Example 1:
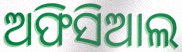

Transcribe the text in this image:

ଅଫିସିଆଲ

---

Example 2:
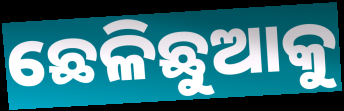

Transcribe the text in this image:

ଛେଳିଛୁଆକୁ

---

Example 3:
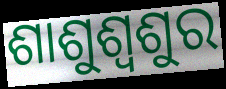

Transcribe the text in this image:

ଶାଶୁଶ୍ୱଶୁର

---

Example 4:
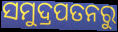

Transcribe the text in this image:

ସମୁଦ୍ରପତନରୁ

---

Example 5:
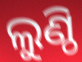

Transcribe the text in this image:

ଲୁଣ୍ଠି